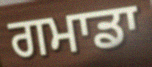
ਗਮਾਡਾ